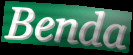
Benda